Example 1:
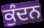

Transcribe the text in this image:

ਕੁੰਦਨ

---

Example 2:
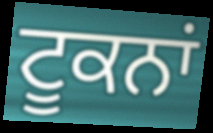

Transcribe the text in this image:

ਟੂਕਨਾਂ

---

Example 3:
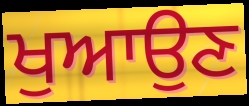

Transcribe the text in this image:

ਖੁਆਉਣ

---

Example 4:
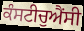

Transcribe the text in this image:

ਕੰਸਟੀਚੁਐਂਸੀ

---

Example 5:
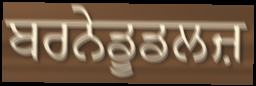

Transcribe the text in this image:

ਬਰਨੇਡੂਡਲਜ਼